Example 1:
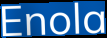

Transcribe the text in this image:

Enola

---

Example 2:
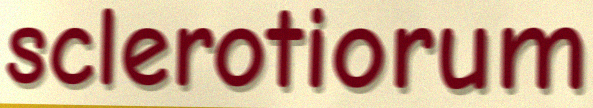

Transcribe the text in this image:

sclerotiorum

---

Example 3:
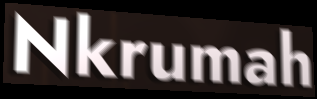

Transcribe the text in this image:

Nkrumah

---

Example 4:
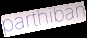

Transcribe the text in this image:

parthiban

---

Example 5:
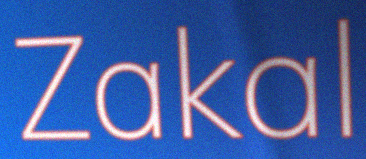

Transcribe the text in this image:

Zakal